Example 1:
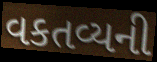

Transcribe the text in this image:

વકતવ્યની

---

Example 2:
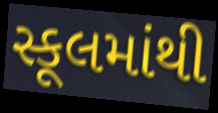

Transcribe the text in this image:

સ્કૂલમાંથી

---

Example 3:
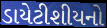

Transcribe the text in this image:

ડાયેટીશીયનો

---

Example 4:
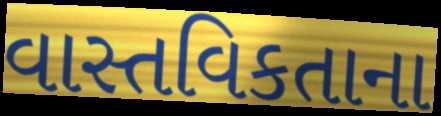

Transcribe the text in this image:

વાસ્તવિકતાના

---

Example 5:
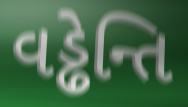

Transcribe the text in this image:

વડ્ઢેન્તિ